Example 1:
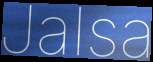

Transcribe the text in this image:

Jalsa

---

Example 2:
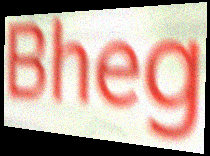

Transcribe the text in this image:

Bheg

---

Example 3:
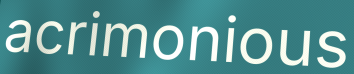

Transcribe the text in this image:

acrimonious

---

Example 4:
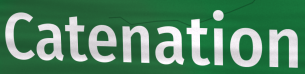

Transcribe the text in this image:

Catenation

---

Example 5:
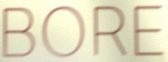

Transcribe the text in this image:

BORE